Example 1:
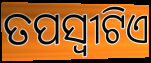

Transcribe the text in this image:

ତପସ୍ୱୀଟିଏ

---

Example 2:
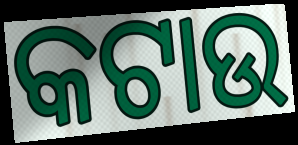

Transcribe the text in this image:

କଟାଉ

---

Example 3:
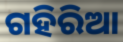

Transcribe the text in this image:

ଗହିରିଆ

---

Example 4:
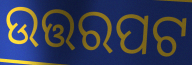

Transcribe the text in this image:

ଉତ୍ତରପଟ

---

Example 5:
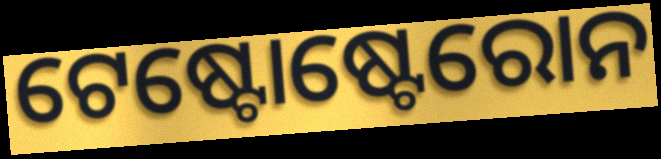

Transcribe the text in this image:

ଟେଷ୍ଟୋଷ୍ଟେରୋନ